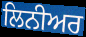
ਲਿਨੀਅਰ